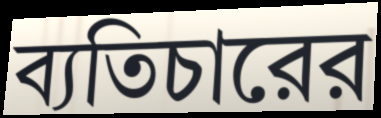
ব্যতিচারের